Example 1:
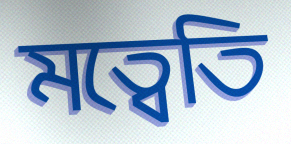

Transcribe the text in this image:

মত্বেতি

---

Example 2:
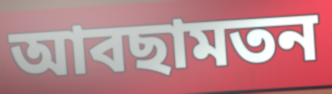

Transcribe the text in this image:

আবছামতন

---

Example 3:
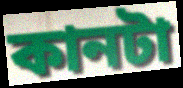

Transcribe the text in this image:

কানটা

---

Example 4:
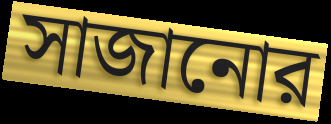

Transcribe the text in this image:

সাজানোর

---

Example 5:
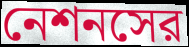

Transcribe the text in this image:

নেশনসের